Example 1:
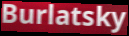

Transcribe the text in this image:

Burlatsky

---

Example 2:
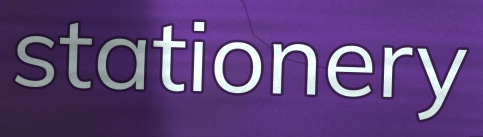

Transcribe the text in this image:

stationery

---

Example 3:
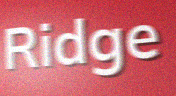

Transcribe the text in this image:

Ridge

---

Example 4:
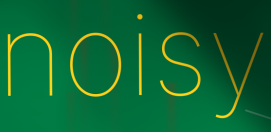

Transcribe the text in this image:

noisy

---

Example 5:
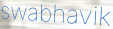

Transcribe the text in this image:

swabhavik